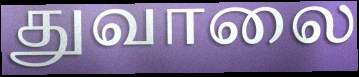
துவாலை